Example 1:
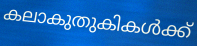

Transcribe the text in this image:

കലാകുതുകികൾക്ക്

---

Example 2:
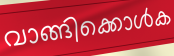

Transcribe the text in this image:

വാങ്ങിക്കൊൾക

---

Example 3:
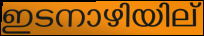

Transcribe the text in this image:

ഇടനാഴിയില്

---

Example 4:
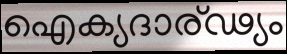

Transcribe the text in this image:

ഐക്യദാര്ഢ്യം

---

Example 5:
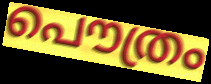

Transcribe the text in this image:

പൌത്രം